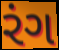
રંગ